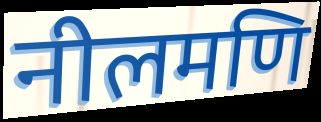
नीलमणि